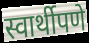
स्वार्थीपणे